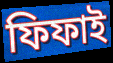
ফিফাই